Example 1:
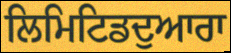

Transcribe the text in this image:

ਲਿਮਿਟਿਡਦੁਆਰਾ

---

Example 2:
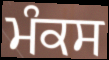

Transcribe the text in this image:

ਮੰਕਸ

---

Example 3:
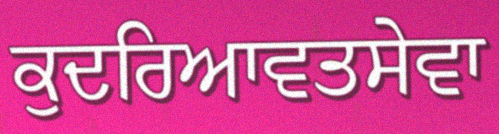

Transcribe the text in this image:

ਕੁਦਰਿਆਵਤਸੇਵਾ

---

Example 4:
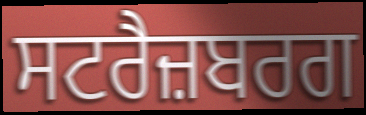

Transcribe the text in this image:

ਸਟਰੈਜ਼ਬਰਗ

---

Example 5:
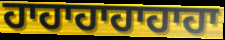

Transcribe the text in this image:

ਹਾਹਾਹਾਹਾਹਾਹਾ